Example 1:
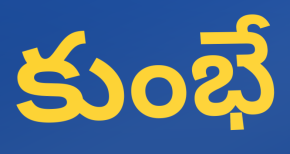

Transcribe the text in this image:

కుంభే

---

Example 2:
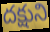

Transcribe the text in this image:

దక్షుని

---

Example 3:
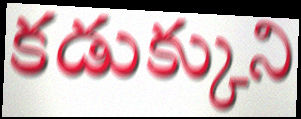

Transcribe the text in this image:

కడుక్కుని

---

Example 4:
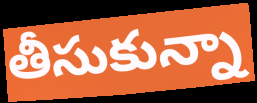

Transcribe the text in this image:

తీసుకున్నా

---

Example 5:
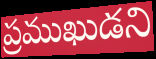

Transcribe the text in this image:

ప్రముఖుడని